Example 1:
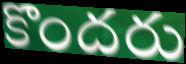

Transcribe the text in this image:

కొందరు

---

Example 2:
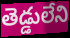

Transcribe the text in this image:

తెడ్డులేని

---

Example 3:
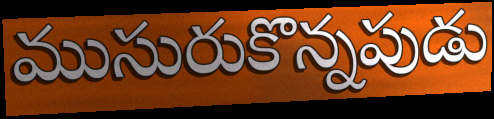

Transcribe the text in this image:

ముసురుకొన్నపుడు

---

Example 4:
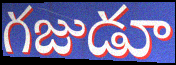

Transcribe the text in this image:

గజుడూ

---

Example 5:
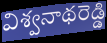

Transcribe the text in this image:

విశ్వనాథరెడ్డి